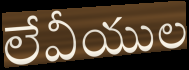
లేవీయుల